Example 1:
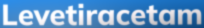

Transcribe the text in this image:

Levetiracetam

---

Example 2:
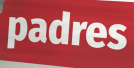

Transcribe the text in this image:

padres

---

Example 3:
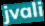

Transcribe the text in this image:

jvali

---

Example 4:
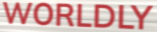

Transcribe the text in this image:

WORLDLY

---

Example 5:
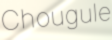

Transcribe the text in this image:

Chougule